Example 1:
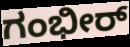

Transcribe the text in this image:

ಗಂಭೀರ್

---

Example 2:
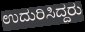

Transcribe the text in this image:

ಉದುರಿಸಿದ್ದರು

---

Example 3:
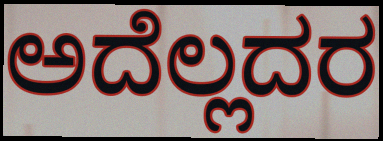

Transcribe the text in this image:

ಅದೆಲ್ಲದರ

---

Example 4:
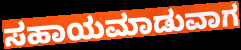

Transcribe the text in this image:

ಸಹಾಯಮಾಡುವಾಗ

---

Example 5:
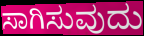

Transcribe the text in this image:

ಸಾಗಿಸುವುದು